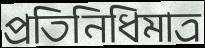
প্রতিনিধিমাত্র